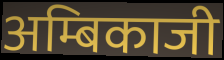
अम्बिकाजी